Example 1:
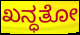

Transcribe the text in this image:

ಖನ್ಧತೋ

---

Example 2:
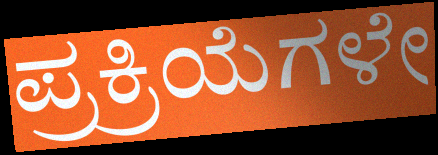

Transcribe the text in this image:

ಪ್ರಕ್ರಿಯೆಗಳೇ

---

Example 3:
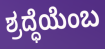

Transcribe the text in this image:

ಶ್ರದ್ಧೆಯೆಂಬ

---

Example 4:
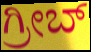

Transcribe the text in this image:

ಗ್ರೀಬ್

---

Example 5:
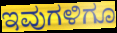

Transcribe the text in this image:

ಇವುಗಳಿಗೂ